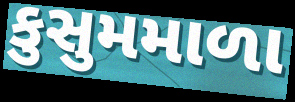
કુસુમમાળા